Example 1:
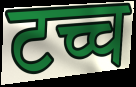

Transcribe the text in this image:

टच्च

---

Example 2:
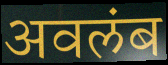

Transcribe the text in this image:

अवलंब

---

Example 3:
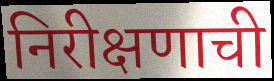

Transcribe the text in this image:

निरीक्षणाची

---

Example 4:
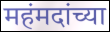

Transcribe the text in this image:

महंमदांच्या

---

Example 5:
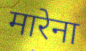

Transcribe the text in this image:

मारेना